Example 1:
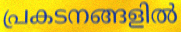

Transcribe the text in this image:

പ്രകടനങ്ങളിൽ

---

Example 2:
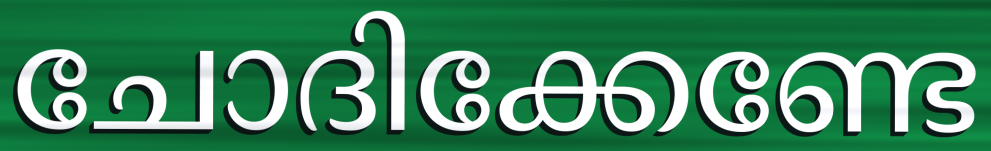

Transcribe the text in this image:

ചോദിക്കേണ്ടേ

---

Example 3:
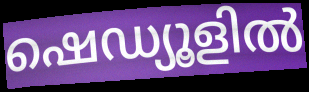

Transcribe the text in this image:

ഷെഡ്യൂളിൽ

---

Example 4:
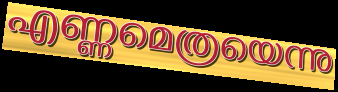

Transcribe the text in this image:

എണ്ണമെത്രയെന്നു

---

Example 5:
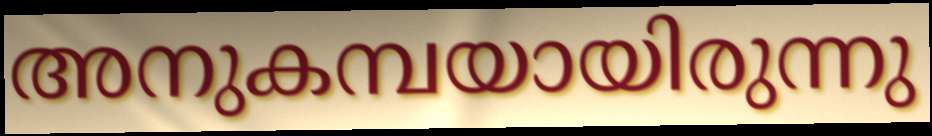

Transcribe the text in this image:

അനുകമ്പയായിരുന്നു